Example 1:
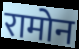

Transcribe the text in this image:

रामोन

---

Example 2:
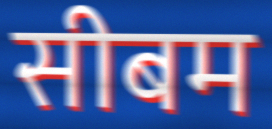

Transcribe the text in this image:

सीबम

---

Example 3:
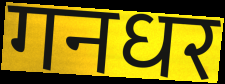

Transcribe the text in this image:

गनधर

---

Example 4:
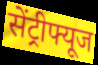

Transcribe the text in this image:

सेंट्रीफ्यूज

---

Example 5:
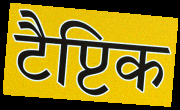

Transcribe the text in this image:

टैप्टिक